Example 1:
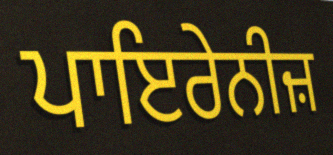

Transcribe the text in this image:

ਪਾਇਰੇਨੀਜ਼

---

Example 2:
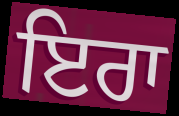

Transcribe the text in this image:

ਇਰਾ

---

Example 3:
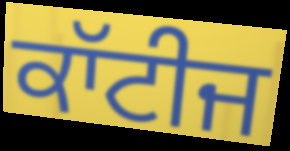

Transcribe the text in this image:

ਕਾੱਟੀਜ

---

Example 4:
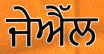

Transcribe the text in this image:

ਜੇਐੱਲ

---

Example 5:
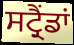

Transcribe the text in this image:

ਸਟ੍ਰੈਂਡਾਂ